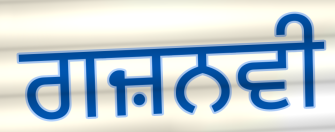
ਗਜ਼ਨਵੀ